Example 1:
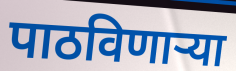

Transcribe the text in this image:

पाठविणाऱ्या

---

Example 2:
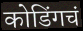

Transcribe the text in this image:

कोडिंगचं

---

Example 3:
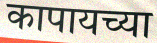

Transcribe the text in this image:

कापायच्या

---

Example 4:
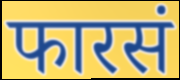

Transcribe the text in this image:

फारसं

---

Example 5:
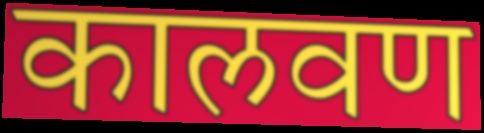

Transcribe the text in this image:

कालवण